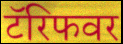
टॅरिफवर